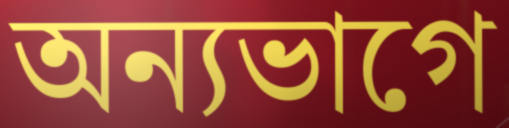
অন্যভাগে